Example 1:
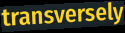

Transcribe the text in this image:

transversely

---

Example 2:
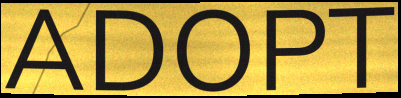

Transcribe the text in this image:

ADOPT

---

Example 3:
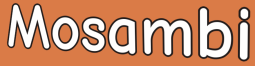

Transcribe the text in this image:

Mosambi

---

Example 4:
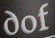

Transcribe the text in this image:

dof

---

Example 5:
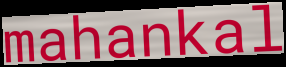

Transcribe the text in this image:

mahankal